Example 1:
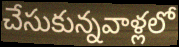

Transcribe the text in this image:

చేసుకున్నవాళ్లలో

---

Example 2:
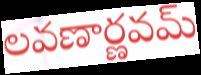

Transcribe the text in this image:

లవణార్ణవమ్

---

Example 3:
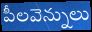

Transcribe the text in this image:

పీలవెన్నులు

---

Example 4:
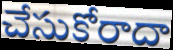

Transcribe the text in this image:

చేసుకోరాదా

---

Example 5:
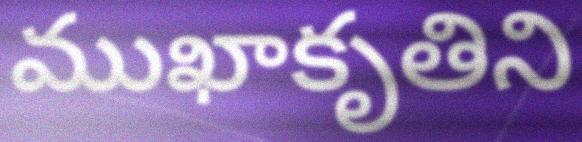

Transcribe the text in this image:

ముఖాకృతిని